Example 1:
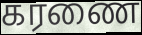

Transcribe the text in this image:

கரணை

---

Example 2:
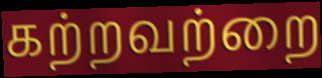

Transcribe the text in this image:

கற்றவற்றை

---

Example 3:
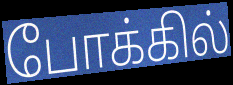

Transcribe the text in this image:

போக்கில்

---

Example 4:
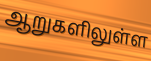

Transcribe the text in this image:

ஆறுகளிலுள்ள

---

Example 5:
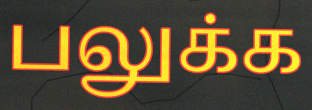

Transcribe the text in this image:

பலுக்க